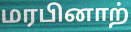
மரபினாற்